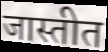
जास्तीत